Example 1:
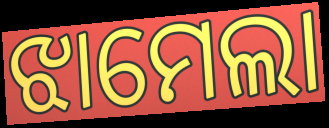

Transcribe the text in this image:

ଝାମେଲା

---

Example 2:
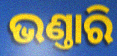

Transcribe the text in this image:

ଭଣ୍ତାରି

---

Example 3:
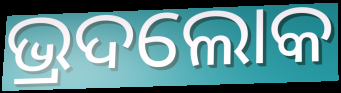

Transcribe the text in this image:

ଭ୍ରଦଲୋକ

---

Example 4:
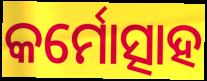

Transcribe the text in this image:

କର୍ମୋତ୍ସାହ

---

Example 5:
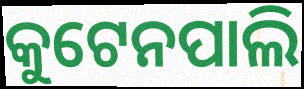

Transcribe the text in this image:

କୁଟେନପାଲି